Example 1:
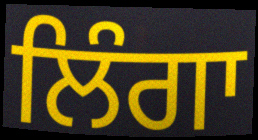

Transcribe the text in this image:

ਲਿੰਗਾ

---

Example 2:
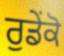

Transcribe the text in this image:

ਰੁਡੇਂਕੋ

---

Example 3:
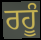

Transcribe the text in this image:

ਰਹੂੰ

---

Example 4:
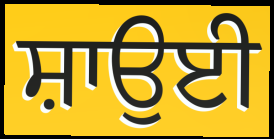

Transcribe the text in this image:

ਸ਼ਾਉਈ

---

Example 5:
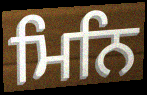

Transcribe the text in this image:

ਮਿਨਿ